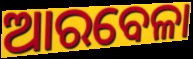
ଆରବେଳା